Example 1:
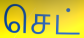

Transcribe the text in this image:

செட்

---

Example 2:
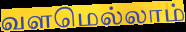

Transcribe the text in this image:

வளமெல்லாம்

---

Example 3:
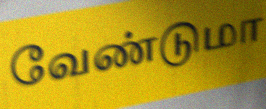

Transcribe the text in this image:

வேண்டுமா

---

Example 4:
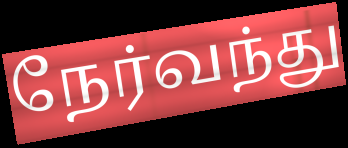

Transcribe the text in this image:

நேர்வந்து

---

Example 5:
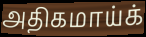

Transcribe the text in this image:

அதிகமாய்க்